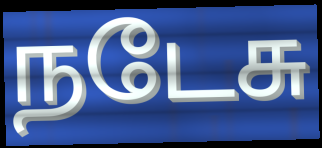
நடேசு